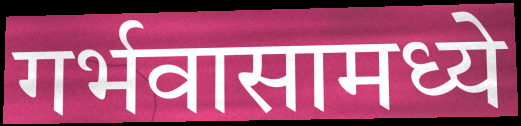
गर्भवासामध्ये